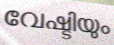
വേഷ്ടിയും